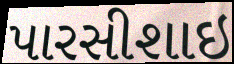
પારસીશાઇ